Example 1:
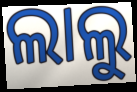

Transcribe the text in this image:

ଲାଲୁ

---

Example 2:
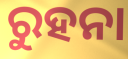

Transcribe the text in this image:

ରୁହନା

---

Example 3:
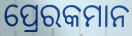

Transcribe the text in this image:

ପ୍ରେରକମାନ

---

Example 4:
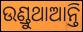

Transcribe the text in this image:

ଉଣ୍ଡୁଥାଆନ୍ତି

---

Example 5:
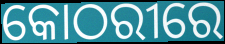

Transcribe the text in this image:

କୋଠରୀରେ